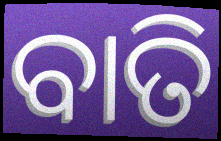
ବାତି